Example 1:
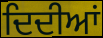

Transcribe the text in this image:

ਦਿਦੀਆਂ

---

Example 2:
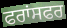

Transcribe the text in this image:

ਫਰਾਂਸਫਰ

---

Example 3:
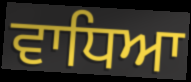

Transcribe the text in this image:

ਵਾਧਿਆ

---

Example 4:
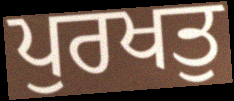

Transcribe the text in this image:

ਪੁਰਖਤੁ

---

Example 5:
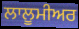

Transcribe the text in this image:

ਲਾਲੂਮੀਅਰ